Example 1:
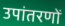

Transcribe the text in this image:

उपांतरणों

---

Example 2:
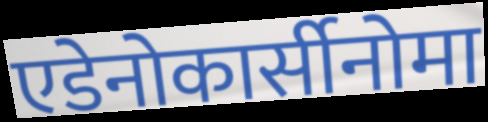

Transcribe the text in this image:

एडेनोकार्सीनोमा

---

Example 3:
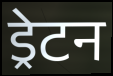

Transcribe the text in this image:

ड्रेटन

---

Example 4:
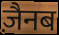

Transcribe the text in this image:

ज़ैनब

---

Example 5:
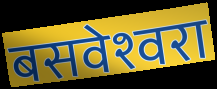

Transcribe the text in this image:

बसवेश्वरा